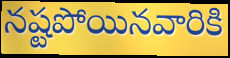
నష్టపోయినవారికి